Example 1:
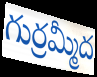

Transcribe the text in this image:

గుర్రమ్మీద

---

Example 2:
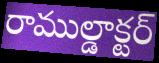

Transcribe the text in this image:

రాముల్డాక్టర్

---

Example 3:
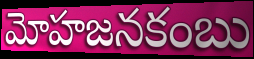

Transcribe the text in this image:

మోహజనకంబు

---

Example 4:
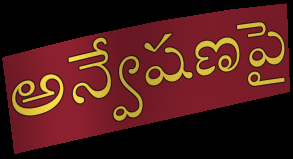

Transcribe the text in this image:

అన్వేషణపై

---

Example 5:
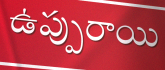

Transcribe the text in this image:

ఉప్పురాయి